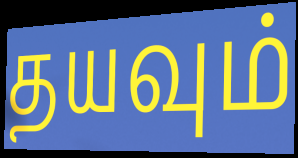
தயவும்